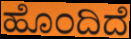
ಹೊಂದಿದೆ